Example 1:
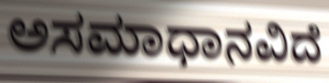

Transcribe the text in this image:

ಅಸಮಾಧಾನವಿದೆ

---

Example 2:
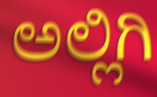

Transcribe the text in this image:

ಅಲ್ಲಿಗಿ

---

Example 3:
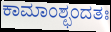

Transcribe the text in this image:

ಕಾಮಾಂಶ್ಛಂದತಃ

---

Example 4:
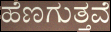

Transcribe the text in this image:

ಹೆಣಗುತ್ತವೆ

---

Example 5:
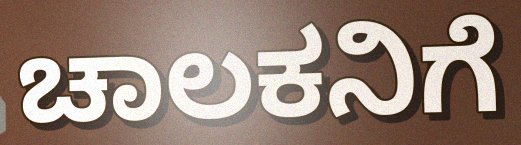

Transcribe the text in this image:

ಚಾಲಕನಿಗೆ